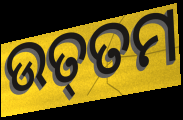
ଉତ୍‌ତମ